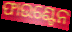
ଫାଉଣ୍ଟେନ